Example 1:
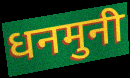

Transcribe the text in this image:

धनमुनी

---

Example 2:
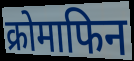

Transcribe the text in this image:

क्रोमाफिन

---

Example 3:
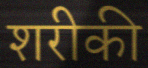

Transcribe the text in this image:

शरीकी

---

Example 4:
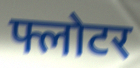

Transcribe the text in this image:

फ्लोटर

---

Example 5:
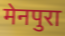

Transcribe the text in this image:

मेनपुरा